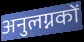
अनुलग्नकों